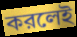
করলেই